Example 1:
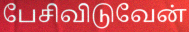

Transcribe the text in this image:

பேசிவிடுவேன்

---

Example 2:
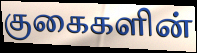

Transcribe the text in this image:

குகைகளின்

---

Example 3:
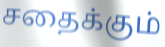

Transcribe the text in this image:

சதைக்கும்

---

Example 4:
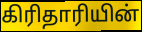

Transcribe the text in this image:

கிரிதாரியின்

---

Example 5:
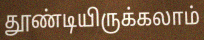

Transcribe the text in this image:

தூண்டியிருக்கலாம்